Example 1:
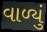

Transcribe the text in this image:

વાળ્યું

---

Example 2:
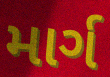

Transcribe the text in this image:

માર્ગ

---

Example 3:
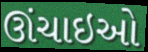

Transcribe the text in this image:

ઊંચાઇઓ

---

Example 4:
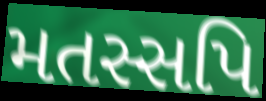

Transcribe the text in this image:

મતસ્સપિ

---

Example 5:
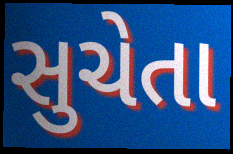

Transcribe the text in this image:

સુચેતા